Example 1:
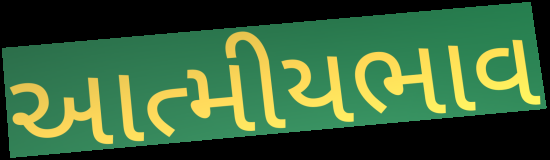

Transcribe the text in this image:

આત્મીયભાવ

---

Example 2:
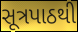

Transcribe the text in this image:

સૂત્રપાઠથી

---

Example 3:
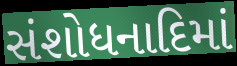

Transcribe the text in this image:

સંશોધનાદિમાં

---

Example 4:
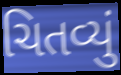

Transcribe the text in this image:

ચિતવ્યું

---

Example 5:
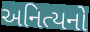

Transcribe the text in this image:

અનિત્યનો